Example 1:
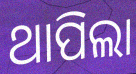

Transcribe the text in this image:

ଥାପିଲା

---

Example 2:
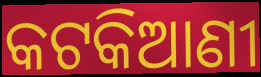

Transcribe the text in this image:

କଟକିଆଣୀ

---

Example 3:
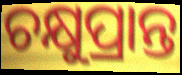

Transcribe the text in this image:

ଚକ୍ଷୁପ୍ରାନ୍ତ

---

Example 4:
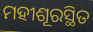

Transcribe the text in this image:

ମହୀଶୂରସ୍ଥିତ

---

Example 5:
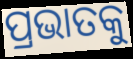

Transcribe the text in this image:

ପ୍ରଭାତକୁ